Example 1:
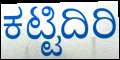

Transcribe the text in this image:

ಕಟ್ಟಿದಿರಿ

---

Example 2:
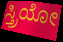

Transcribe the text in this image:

ಸ್ತ್ರಿಯೋ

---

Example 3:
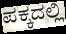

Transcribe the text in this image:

ಪಕ್ಕದಲ್ಲಿ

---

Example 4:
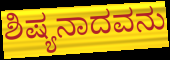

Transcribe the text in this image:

ಶಿಷ್ಯನಾದವನು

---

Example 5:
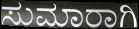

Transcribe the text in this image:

ಸುಮಾರಾಗಿ